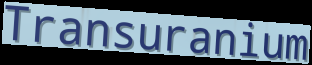
Transuranium